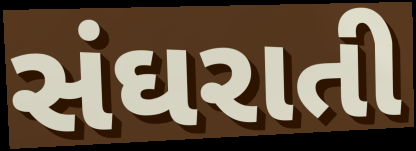
સંઘરાતી